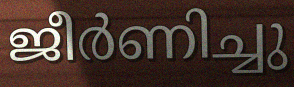
ജീർണിച്ചു